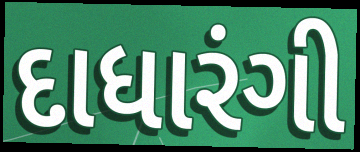
દાધારંગી